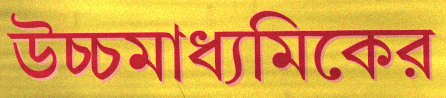
উচ্চমাধ্যমিকের